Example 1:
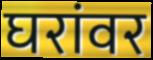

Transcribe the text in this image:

घरांवर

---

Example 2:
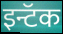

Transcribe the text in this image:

इन्टॅक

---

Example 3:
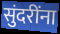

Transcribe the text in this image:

सुंदरींना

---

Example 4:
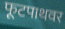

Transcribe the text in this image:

फूटपाथवर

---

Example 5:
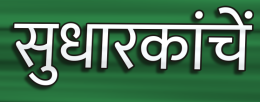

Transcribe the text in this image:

सुधारकांचें